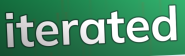
iterated